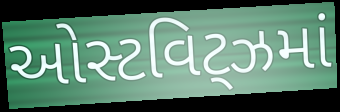
ઓસ્ટવિટ્ઝમાં